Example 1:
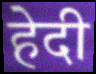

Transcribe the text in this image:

हेदी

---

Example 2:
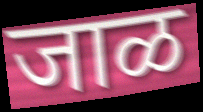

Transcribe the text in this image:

जाळ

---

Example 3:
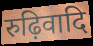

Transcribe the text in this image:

रुढ़िवादि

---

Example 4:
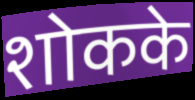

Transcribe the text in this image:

शोकके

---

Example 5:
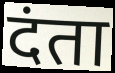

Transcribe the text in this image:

दंता